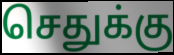
செதுக்கு